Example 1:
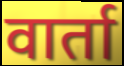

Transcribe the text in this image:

वार्ता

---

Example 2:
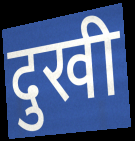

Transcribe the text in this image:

दुखी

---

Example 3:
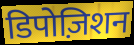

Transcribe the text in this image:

डिपोज़िशन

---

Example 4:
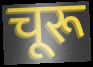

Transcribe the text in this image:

चूरू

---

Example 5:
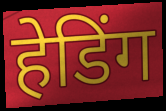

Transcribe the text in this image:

हेडिंग